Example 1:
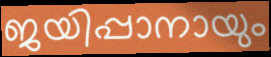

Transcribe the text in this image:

ജയിപ്പാനായും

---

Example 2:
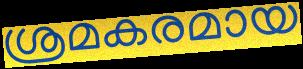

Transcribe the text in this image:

ശ്രമകരമായ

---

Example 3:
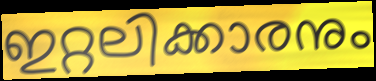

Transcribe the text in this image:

ഇറ്റലിക്കാരനും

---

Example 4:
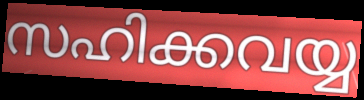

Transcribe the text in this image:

സഹിക്കവയ്യ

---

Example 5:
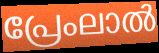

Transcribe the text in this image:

പ്രേംലാൽ